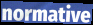
normative